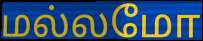
மல்லமோ